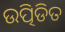
ଉତ୍ପିଡିତ